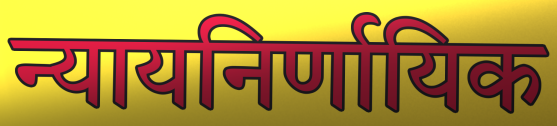
न्यायनिर्णायिक